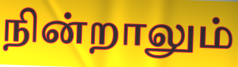
நின்றாலும்